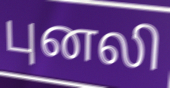
புனலி